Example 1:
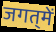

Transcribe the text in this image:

जगत्‌में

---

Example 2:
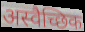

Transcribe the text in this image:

अस्वैच्छिक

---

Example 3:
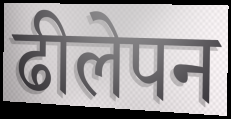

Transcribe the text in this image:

ढीलेपन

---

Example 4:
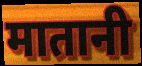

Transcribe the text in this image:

मातानी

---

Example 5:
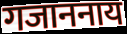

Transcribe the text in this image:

गजाननाय